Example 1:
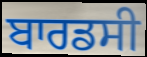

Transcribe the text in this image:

ਬਾਰਡਸੀ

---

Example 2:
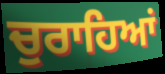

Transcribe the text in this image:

ਚੁਰਾਹਿਆਂ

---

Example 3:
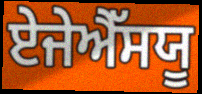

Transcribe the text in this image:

ਏਜੇਐੱਸਯੂ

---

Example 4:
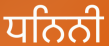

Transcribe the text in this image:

ਧਨਿਨੀ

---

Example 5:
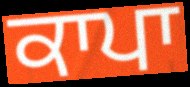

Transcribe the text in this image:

ਕਾਪਾ